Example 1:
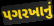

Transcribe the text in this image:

પગરખાનું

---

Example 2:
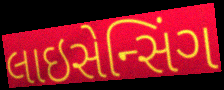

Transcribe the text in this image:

લાઇસેન્સિંગ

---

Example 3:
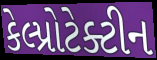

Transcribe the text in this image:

કેલ્પ્રોટેક્ટીન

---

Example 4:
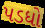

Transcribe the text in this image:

પડધો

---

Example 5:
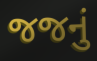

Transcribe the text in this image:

જજનું